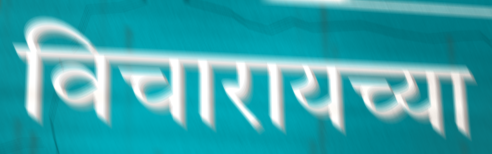
विचारायच्या